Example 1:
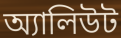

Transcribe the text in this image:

অ্যালিউট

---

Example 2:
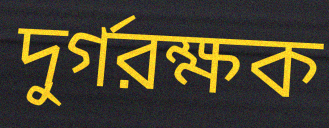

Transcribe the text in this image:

দুর্গরক্ষক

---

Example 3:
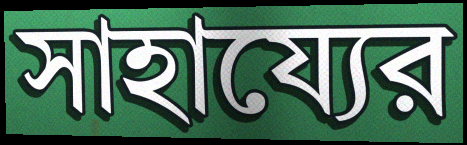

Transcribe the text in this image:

সাহায্যের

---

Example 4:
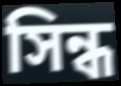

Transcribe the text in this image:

সিন্ধ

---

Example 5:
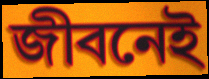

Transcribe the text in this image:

জীবনেই